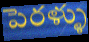
పెరళ్ళు